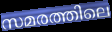
സമരത്തിലെ